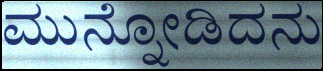
ಮುನ್ನೋಡಿದನು